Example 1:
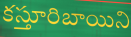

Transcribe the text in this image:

కస్తూరిబాయిని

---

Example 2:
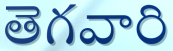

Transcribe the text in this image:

తెగవారి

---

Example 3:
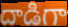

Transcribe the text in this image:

దాడిగా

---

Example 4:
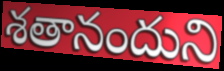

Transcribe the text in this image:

శతానందుని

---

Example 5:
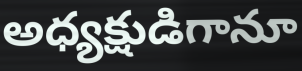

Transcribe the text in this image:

అధ్యక్షుడిగానూ